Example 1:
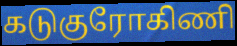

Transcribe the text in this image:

கடுகுரோகிணி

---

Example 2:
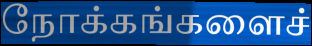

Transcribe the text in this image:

நோக்கங்களைச்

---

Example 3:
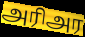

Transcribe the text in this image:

அரிஅர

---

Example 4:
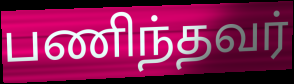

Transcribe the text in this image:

பணிந்தவர்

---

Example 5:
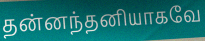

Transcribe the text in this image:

தன்னந்தனியாகவே